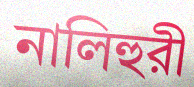
নালিহুরী